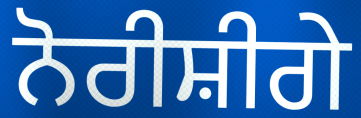
ਨੋਰੀਸ਼ੀਗੇ